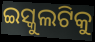
ଇସ୍କୁଲଟିକୁ